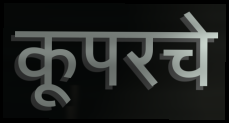
कूपरचे